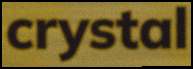
crystal